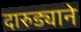
दारुड्याने